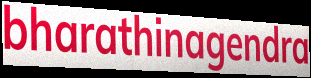
bharathinagendra